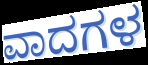
ವಾದಗಳ